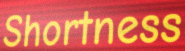
Shortness